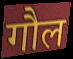
गौल